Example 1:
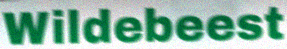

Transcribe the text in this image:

Wildebeest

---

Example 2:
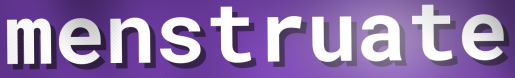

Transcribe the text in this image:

menstruate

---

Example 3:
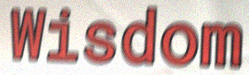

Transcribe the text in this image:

Wisdom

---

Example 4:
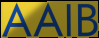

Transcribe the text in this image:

AAIB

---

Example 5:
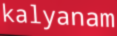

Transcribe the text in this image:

kalyanam